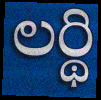
లర్థి